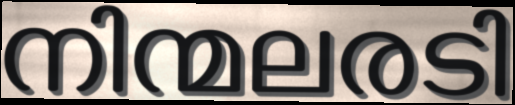
നിന്മലരടി